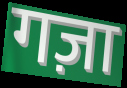
गज़ा